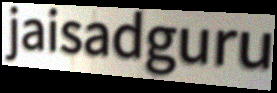
jaisadguru